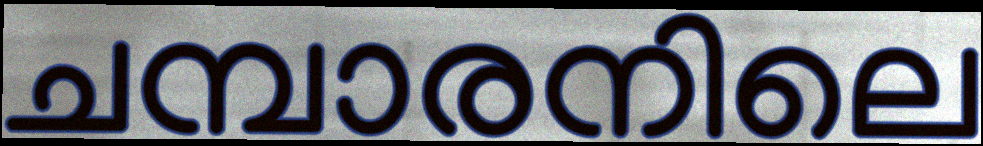
ചമ്പാരനിലെ